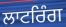
ਲਾਟਰਿੰਗ